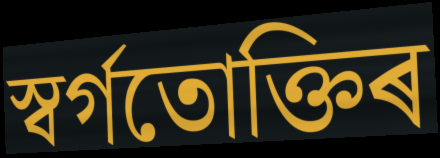
স্বৰ্গতোক্তিৰ